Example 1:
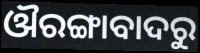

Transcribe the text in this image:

ଔରଙ୍ଗାବାଦରୁ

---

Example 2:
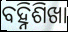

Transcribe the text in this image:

ବହ୍ନିଶିଖା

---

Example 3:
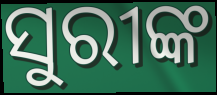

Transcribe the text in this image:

ସୁରୀଙ୍କ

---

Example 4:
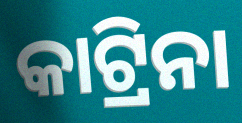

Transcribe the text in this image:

କାଟ୍ରିନା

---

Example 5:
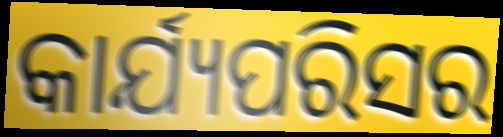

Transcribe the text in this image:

କାର୍ଯ୍ୟପରିସର